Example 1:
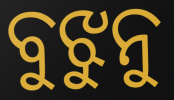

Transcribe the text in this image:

ବୁଝୁନୁ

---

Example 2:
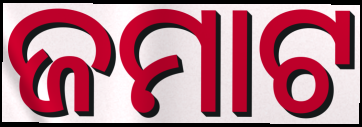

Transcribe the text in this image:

ଜମାଟ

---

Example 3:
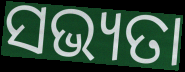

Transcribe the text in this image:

ସଭ୍ଯତା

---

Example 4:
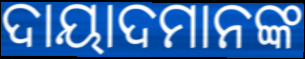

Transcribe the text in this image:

ଦାୟାଦମାନଙ୍କ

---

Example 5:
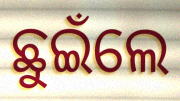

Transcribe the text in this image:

ଛୁଇଁଲେ